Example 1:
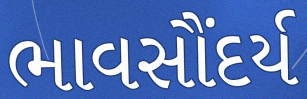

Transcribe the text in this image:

ભાવસૌંદર્ય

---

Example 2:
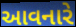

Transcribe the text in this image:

આવનારે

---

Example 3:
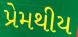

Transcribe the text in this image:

પ્રેમથીય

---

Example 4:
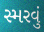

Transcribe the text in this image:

સ્મરવું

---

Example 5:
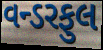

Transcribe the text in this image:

વન્ડરફુલ